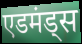
एडमंड्स